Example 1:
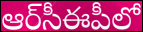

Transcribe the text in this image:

ఆర్‌సీఈపీలో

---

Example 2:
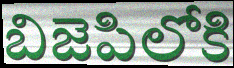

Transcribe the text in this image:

బిజెపిలోకి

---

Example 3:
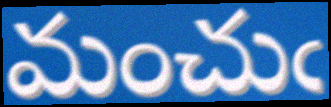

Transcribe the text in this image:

మంచుఁ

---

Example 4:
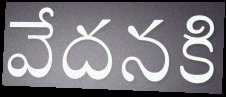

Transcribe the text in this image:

వేదనకి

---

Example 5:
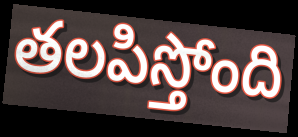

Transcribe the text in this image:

తలపిస్తోంది